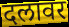
दलावर